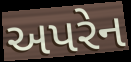
અપરેન